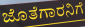
ಜೊತೆಗಾರನಿಗೆ